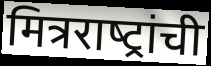
मित्रराष्ट्रांची